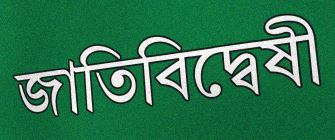
জাতিবিদ্বেষী